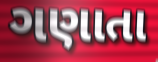
ગણાતા